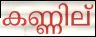
കണ്ണില്